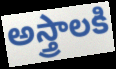
అస్త్రాలకి